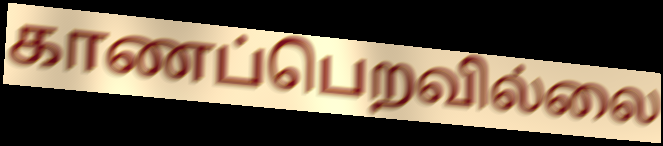
காணப்பெறவில்லை